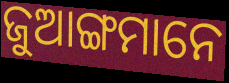
ଜୁଆଙ୍ଗମାନେ